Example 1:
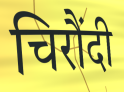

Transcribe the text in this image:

चिरौंदी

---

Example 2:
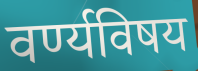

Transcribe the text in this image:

वर्ण्यविषय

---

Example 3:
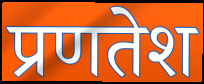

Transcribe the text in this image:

प्रणतेश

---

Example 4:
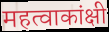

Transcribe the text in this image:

महत्वाकांक्षी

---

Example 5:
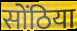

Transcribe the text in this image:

सोंठिया